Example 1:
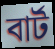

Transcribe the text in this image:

বাৰ্ট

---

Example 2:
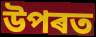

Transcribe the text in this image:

উপৰত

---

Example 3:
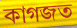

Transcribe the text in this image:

কাগজত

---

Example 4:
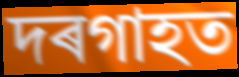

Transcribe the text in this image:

দৰগাহত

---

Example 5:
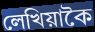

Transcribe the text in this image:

লেখিয়াকৈ